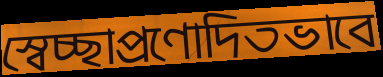
স্বেচ্ছাপ্রণোদিতভাবে